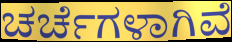
ಚರ್ಚೆಗಳಾಗಿವೆ